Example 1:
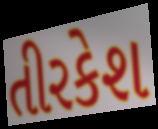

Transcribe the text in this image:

તીરકેશ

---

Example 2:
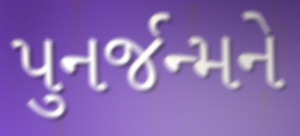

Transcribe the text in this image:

પુનર્જન્મને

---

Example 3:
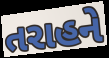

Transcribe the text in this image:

તરાહને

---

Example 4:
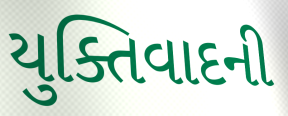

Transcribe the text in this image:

યુક્તિવાદની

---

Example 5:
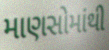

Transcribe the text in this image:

માણસોમાંથી